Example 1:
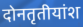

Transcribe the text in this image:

दोनतृतीयांश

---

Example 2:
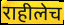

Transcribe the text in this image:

राहीलेच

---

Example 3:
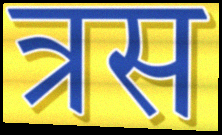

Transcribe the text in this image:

त्रस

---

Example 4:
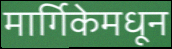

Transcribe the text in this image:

मार्गिकेमधून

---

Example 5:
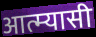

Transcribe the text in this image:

आत्म्यासी